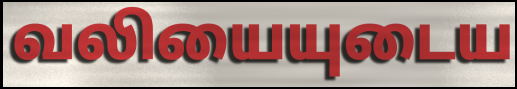
வலியையுடைய